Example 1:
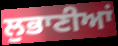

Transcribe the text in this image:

ਲੁਭਾਣੀਆਂ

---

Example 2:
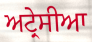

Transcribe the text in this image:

ਅਟ੍ਰੇਸੀਆ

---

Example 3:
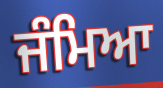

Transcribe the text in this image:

ਜੰਮਿਆ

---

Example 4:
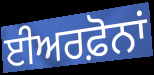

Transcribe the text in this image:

ਈਅਰਫ਼ੋਨਾਂ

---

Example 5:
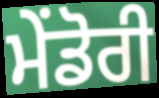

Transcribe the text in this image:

ਮੇਂਡੋਰੀ